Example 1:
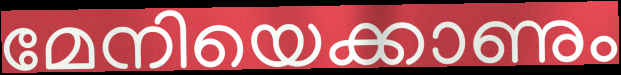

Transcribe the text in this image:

മേനിയെക്കാണും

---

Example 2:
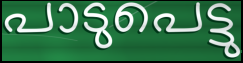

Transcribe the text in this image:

പാടുപെട്ടു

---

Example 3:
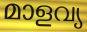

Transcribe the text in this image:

മാളവ്യ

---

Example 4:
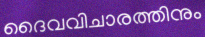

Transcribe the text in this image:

ദൈവവിചാരത്തിനും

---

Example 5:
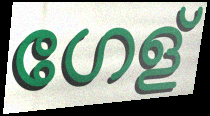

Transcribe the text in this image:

ഗേള്